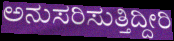
ಅನುಸರಿಸುತ್ತಿದ್ದೀರಿ